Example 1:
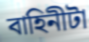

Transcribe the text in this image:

বাহিনীটা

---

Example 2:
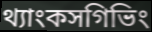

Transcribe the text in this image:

থ্যাংকসগিভিং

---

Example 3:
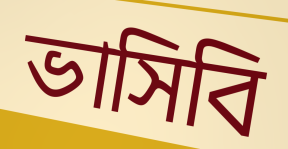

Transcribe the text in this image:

ভাসিবি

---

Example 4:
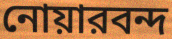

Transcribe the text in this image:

নোয়ারবন্দ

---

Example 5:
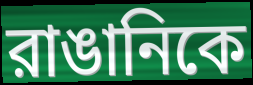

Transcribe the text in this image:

রাঙানিকে